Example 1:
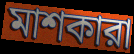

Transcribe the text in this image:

মাশকারা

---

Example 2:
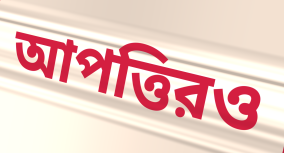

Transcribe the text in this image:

আপত্তিরও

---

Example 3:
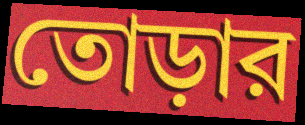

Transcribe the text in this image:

তোড়ার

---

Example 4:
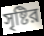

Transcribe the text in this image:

সৃষ্টির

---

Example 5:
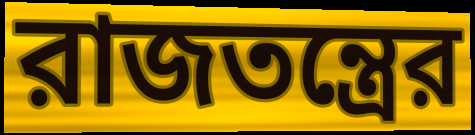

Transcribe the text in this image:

রাজতন্ত্রের